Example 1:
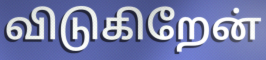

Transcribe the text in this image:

விடுகிறேன்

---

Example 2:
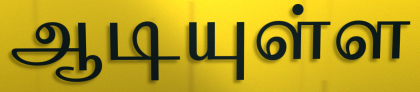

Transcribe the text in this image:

ஆடியுள்ள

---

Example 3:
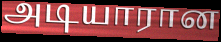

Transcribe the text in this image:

அடியாரான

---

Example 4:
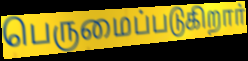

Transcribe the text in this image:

பெருமைப்படுகிறார்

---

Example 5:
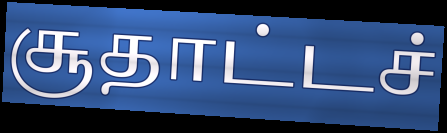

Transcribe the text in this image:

சூதாட்டச்